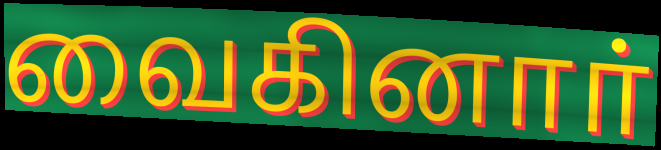
வைகினார்